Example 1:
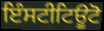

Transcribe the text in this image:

ਇੰਸਟੀਟਿਊਟੋ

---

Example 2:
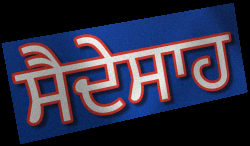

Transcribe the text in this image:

ਸੈਦੇਸਾਹ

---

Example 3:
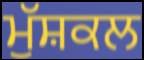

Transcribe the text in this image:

ਮੁੱਸ਼ਕਲ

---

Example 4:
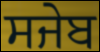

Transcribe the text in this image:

ਸਜੇਬ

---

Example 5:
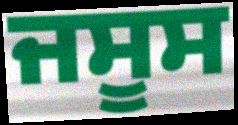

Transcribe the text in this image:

ਜਸੂਸ